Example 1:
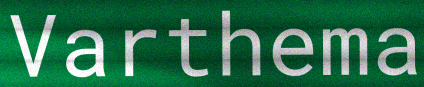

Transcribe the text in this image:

Varthema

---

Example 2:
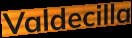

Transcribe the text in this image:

Valdecilla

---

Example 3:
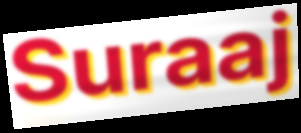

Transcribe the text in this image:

Suraaj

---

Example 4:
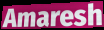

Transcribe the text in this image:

Amaresh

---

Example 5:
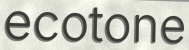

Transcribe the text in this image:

ecotone